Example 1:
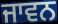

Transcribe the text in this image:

ਜਾਵਨ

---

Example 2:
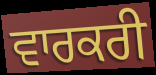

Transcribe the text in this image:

ਵਾਰਕਰੀ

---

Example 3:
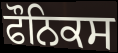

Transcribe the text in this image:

ਫੌਨਿਕਸ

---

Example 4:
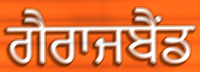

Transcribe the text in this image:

ਗੈਰਾਜਬੈਂਡ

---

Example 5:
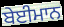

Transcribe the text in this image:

ਬੇਈਮਾਨ